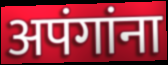
अपंगांना